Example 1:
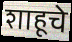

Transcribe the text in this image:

शाहूचे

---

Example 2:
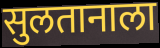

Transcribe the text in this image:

सुलतानाला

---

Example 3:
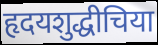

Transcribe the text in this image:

हृदयशुद्धीचिया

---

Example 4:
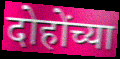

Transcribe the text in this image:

दोहोंच्या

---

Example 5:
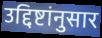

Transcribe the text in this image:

उद्दिष्टांनुसार